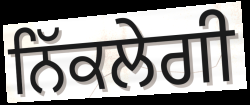
ਨਿੱਕਲੇਗੀ